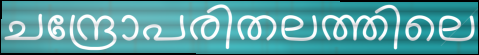
ചന്ദ്രോപരിതലത്തിലെ